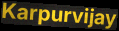
Karpurvijay